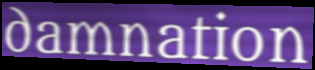
damnation